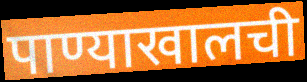
पाण्याखालची